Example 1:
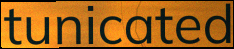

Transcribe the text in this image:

tunicated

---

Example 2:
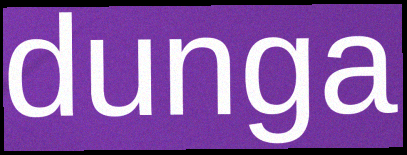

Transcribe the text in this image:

dunga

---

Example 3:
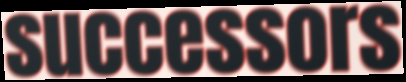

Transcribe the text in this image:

successors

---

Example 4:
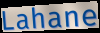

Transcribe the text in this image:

Lahane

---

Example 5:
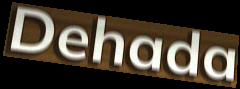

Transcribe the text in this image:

Dehada